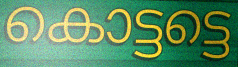
കൊട്ടട്ടെ